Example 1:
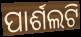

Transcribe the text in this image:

ପାର୍ଶଲଟି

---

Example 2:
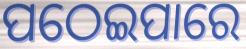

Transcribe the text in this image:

ପଠେଇପାରେ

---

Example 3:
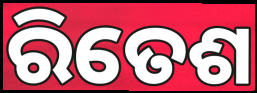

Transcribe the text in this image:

ରିତେଶ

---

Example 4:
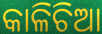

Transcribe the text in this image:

କାଳିଚିଆ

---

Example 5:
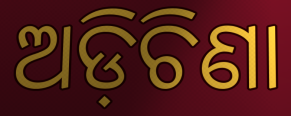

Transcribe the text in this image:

ଅଡ଼ିଚିଣା